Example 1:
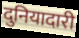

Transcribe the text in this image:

दुनियादारी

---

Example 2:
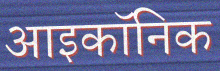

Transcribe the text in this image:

आइकॉनिक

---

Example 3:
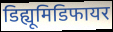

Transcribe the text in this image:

डिह्यूमिडिफायर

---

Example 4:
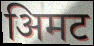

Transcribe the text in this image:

अिमट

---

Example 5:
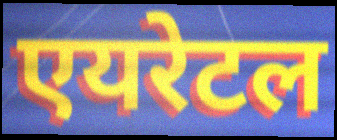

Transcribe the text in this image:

एयरेटल